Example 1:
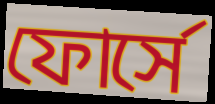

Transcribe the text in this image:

ফোর্সে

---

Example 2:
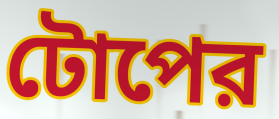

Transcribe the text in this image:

টোপের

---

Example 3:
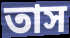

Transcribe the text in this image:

তাস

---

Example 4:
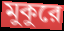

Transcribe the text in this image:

মুকুরে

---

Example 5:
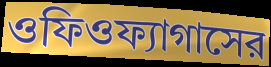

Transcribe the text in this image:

ওফিওফ্যাগাসের